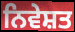
ਨਿਵੇਸ਼ਤ